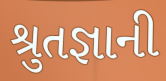
શ્રુતજ્ઞાની